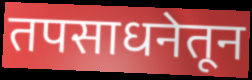
तपसाधनेतून